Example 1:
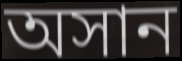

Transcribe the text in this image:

অসান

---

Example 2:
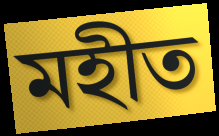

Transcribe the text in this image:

মহীত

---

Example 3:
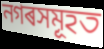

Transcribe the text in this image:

নগৰসমূহত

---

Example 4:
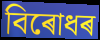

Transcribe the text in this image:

বিৰোধৰ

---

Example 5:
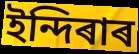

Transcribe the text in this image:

ইন্দিৰাৰ